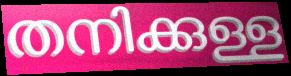
തനിക്കുള്ള